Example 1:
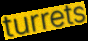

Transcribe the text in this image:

turrets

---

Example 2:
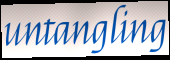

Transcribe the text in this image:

untangling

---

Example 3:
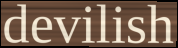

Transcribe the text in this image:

devilish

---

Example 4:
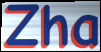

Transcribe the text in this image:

Zha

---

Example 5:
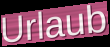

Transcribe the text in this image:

Urlaub